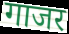
गाजर